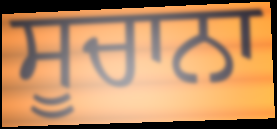
ਸੂਚਾਨਾ